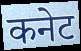
कनेट